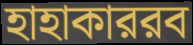
হাহাকাররব